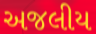
અજલીય